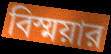
বিস্ময়ার